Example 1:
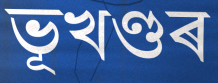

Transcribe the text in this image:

ভূখণ্ডৰ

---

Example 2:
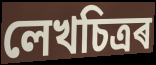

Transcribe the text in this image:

লেখচিত্ৰৰ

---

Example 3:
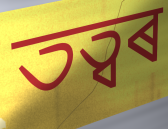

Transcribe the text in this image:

তত্বৰ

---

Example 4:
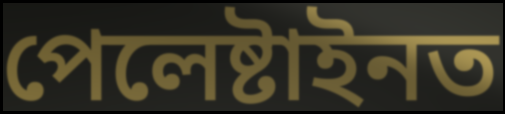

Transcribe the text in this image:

পেলেষ্টাইনত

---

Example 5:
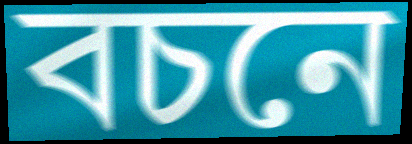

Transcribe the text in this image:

বচনে